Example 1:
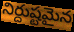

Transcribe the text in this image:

నిర్దుష్టమైన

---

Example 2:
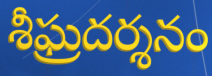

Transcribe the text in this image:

శీఘ్రదర్శనం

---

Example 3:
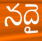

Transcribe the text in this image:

నదై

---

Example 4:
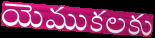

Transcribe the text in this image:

యెముకలకు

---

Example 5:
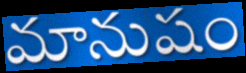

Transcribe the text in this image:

మానుషం